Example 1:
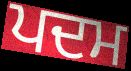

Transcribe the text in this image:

ਪਦਮ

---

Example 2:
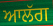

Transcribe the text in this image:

ਆਲੱਗ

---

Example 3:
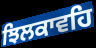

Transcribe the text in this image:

ਝਿਲਕਾਵਹਿ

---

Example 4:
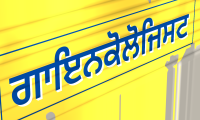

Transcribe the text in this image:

ਗਾਇਨਕੋਲੋਜਿਸਟ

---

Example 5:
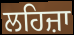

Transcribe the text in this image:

ਲਹਿਜ਼ਾ